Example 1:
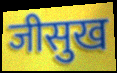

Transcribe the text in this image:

जीसुख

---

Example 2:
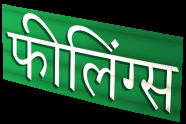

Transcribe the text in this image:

फीलिंग्स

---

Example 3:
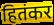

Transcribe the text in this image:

हितंकर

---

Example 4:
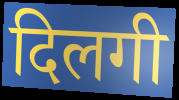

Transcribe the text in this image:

दिलगी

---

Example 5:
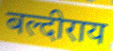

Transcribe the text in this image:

बल्दीराय